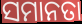
ସମାନତା